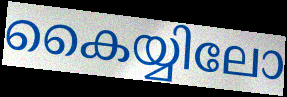
കൈയ്യിലോ